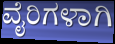
ವೈರಿಗಳಾಗಿ